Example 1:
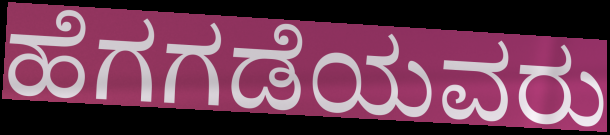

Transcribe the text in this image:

ಹೆಗಗಡೆಯವರು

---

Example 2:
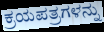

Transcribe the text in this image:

ಕ್ರಯಪತ್ರಗಳನ್ನು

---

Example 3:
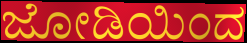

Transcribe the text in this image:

ಜೋಡಿಯಿಂದ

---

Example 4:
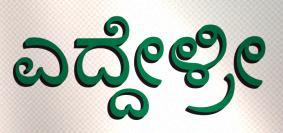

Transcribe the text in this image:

ಎದ್ದೇಳ್ರೀ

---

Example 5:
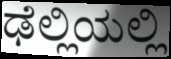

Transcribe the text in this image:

ಢೆಲ್ಲಿಯಲ್ಲಿ